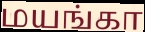
மயங்கா